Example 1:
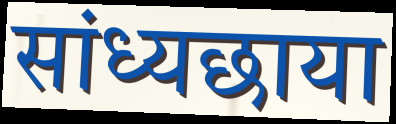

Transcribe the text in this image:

सांध्यछाया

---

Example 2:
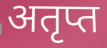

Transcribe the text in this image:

अतृप्त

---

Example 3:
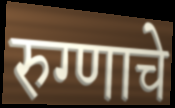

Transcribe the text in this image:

रुग्णाचे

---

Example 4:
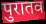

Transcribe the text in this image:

पुरातव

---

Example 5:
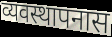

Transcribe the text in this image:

व्यवस्थापनास